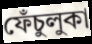
ফেঁচুলুকা